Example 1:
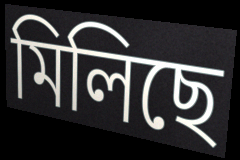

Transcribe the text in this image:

মিলিছে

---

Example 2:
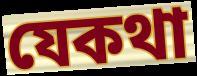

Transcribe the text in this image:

যেকথা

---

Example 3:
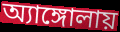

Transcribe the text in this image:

অ্যাঙ্গোলায়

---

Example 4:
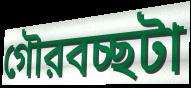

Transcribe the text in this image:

গৌরবচ্ছটা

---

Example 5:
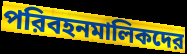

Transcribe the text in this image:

পরিবহনমালিকদের